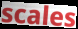
scales